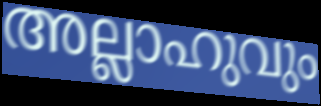
അല്ലാഹുവും